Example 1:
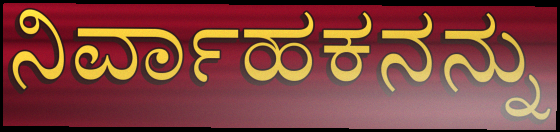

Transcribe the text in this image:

ನಿರ್ವಾಹಕನನ್ನು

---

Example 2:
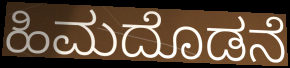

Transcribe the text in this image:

ಹಿಮದೊಡನೆ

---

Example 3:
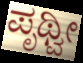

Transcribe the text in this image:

ಪೃಥ್ವೀ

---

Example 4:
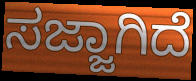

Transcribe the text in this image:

ಸಜ್ಜಾಗಿದೆ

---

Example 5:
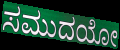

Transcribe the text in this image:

ಸಮುದಯೋ